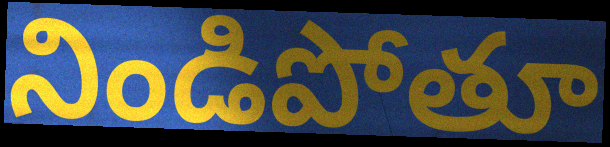
నిండిపోతూ